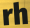
rh